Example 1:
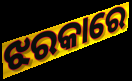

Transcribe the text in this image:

ଝରକାରେ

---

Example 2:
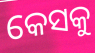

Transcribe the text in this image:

କେସକୁ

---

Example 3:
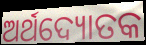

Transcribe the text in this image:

ଅର୍ଥଦ୍ୟୋତକ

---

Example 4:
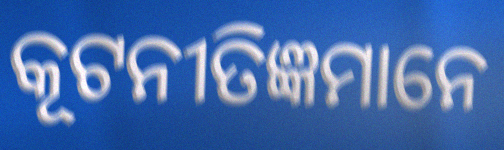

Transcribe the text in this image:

କୂଟନୀତିଜ୍ଞମାନେ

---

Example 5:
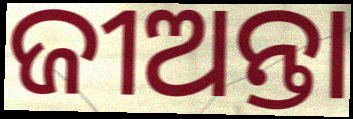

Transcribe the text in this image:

ଜୀଅନ୍ତା